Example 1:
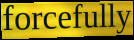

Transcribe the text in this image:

forcefully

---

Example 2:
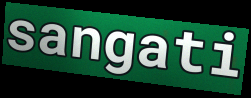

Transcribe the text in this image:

sangati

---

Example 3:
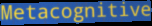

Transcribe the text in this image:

Metacognitive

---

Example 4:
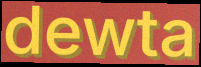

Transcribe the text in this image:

dewta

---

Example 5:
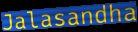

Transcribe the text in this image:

Jalasandha